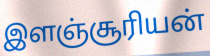
இளஞ்சூரியன்